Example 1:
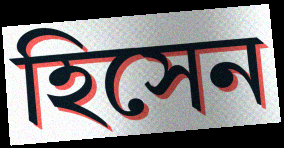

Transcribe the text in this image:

হিসেন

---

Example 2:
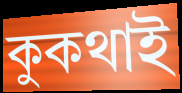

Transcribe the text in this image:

কুকথাই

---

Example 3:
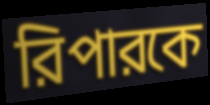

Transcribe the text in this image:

রিপারকে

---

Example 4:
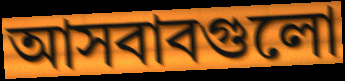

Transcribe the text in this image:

আসবাবগুলো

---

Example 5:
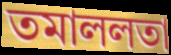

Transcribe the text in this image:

তমাললতা